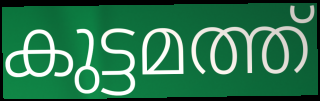
കുട്ടമത്ത്